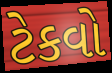
ટેકવો